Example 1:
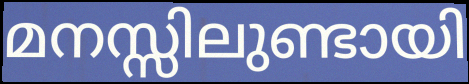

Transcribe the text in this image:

മനസ്സിലുണ്ടായി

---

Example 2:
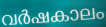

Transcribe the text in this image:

വർഷകാലം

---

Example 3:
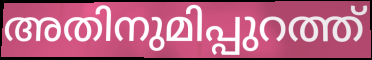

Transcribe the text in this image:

അതിനുമിപ്പുറത്ത്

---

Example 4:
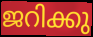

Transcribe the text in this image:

ജറിക്കു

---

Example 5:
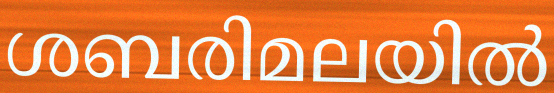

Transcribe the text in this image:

ശബരിമലയിൽ